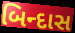
બિન્દાસ